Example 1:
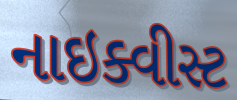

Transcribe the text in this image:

નાઇક્વીસ્ટ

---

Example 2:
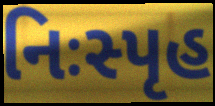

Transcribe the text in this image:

નિઃસ્પૃહ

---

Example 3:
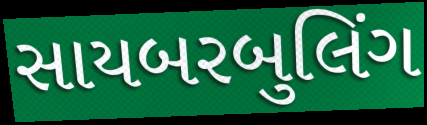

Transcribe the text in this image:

સાયબરબુલિંગ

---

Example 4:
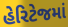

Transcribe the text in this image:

હેરિટેજમાં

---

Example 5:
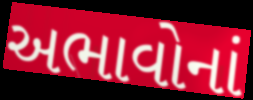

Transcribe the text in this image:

અભાવોનાં